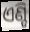
ଏଣ୍ଡି